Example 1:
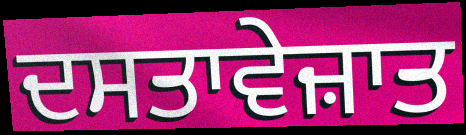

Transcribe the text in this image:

ਦਸਤਾਵੇਜ਼ਾਤ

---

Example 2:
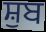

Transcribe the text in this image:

ਸ਼ੁਬ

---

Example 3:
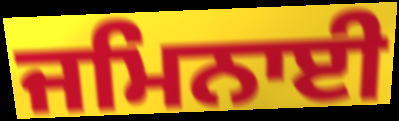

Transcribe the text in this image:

ਜਮਿਨਾਈ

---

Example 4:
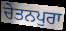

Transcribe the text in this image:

ਚੇਤਨਪੁਰਾ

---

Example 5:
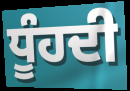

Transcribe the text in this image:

ਧੂੰਹਦੀ